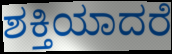
ಶಕ್ತಿಯಾದರೆ